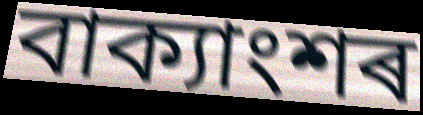
বাক্যাংশৰ